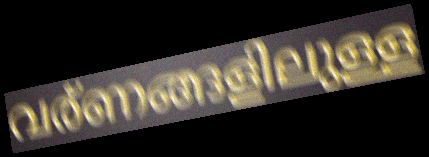
വര്ണങ്ങളിലുള്ള